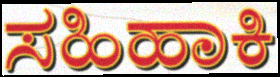
ಸಹಿಹಾಕಿ